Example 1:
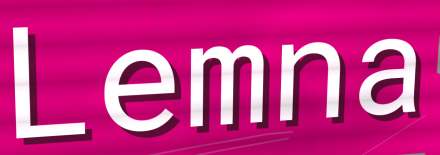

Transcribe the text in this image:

Lemna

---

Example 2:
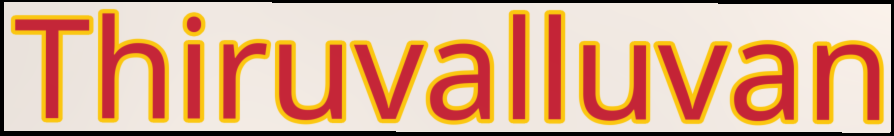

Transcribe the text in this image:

Thiruvalluvan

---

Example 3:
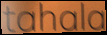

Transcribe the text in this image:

tahala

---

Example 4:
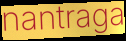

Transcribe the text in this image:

nantraga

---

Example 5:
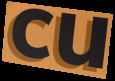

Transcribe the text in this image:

cu